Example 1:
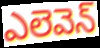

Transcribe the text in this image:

ఎలెవెన్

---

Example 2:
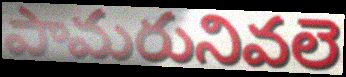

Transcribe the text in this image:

పామరునివలె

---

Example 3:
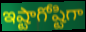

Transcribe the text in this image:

ఇష్టాగోష్టిగా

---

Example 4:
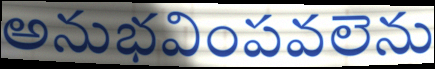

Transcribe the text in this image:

అనుభవింపవలెను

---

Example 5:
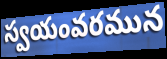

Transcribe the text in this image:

స్వయంవరమున